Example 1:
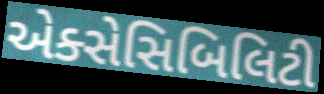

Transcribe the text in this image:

એક્સેસિબિલિટી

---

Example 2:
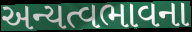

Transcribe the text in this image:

અન્યત્વભાવના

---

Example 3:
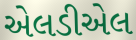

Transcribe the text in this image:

એલડીએલ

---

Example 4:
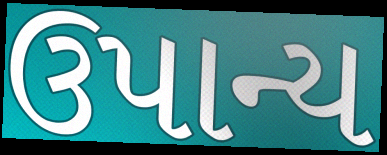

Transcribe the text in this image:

ઉપાન્ય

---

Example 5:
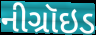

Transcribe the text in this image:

નીગ્રૉઇડ